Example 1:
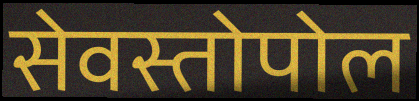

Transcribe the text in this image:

सेवस्तोपोल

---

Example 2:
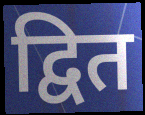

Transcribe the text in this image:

द्वित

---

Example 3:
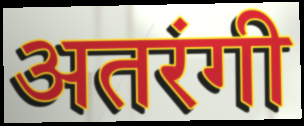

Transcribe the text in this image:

अतरंगी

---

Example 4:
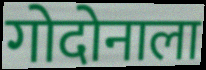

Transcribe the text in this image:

गोदोनाला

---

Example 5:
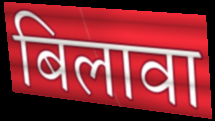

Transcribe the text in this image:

बिलावा